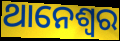
ଥାନେଶ୍ୱର